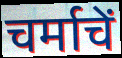
चर्माचें